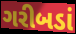
ગરીબડાં